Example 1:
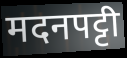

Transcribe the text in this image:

मदनपट्टी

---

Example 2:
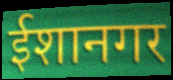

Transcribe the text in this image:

ईशानगर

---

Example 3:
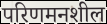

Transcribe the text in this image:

परिणमनशील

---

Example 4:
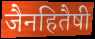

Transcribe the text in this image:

जैनहितैषी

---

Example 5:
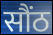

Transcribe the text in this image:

सौंठ